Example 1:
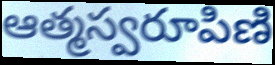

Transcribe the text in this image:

ఆత్మస్వరూపిణి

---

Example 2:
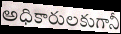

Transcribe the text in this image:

అధికారులకుగానీ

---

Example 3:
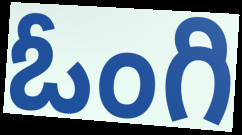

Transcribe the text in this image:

ఓంగి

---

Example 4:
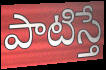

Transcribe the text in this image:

పాటిస్తే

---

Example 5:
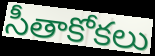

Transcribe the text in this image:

సీతాకోకలు